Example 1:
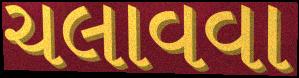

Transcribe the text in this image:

ચલાવવા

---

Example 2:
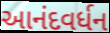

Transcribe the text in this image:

આનંદવર્ધન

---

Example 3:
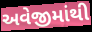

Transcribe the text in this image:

અવેજીમાંથી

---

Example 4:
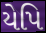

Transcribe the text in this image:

યેપિ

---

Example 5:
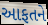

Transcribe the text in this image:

આફતને